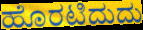
ಹೊರಟಿದುದು